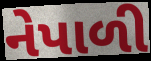
નેપાળી